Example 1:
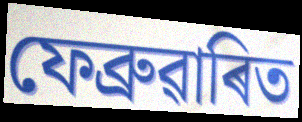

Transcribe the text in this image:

ফেব্ৰুৱাৰিত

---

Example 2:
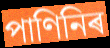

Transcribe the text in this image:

পাণিনিৰ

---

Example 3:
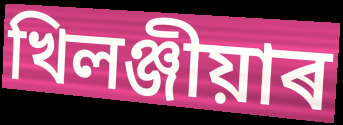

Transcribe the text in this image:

খিলঞ্জীয়াৰ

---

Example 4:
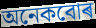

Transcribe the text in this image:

অনেকবোৰ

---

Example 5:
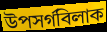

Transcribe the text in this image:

উপসৰ্গবিলাক